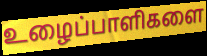
உழைப்பாளிகளை